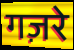
गज़रे